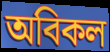
অবিকল